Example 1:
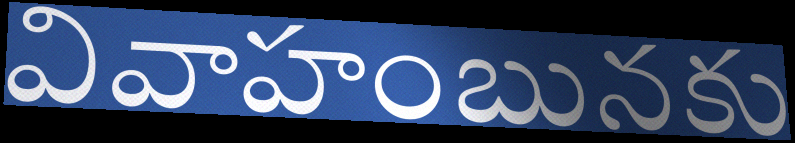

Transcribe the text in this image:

వివాహంబునకు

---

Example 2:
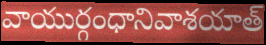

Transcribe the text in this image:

వాయుర్గంధానివాశయాత్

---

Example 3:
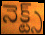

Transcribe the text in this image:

నెక్ట్స్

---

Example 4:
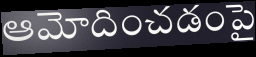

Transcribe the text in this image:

ఆమోదించడంపై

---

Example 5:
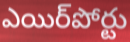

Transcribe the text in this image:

ఎయిర్‌పోర్టు